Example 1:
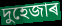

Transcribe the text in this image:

দুহেজাৰ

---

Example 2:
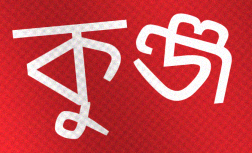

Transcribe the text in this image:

কুঞ্জ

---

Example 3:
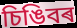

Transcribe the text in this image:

চিঙিবৰ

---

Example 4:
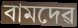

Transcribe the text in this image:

বামদেৱ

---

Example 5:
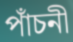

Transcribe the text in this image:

পাঁচনী